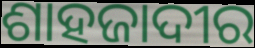
ଶାହଜାଦୀର